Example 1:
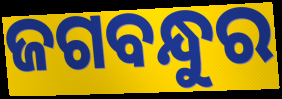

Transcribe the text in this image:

ଜଗବନ୍ଧୁର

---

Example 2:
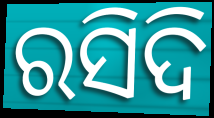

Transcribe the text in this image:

ରସିଦି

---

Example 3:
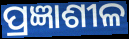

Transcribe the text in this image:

ପ୍ରଜ୍ଞାଶୀଳ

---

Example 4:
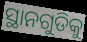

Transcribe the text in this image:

ସ୍ଥାନଗୁଡିକୁ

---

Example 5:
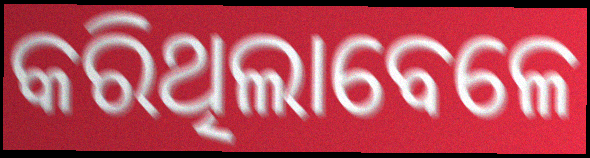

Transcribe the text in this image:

କରିଥିଲାବେଳେ